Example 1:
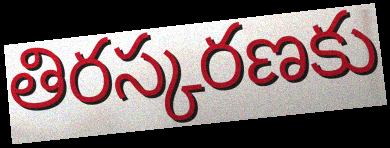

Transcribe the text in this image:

తిరస్కరణకు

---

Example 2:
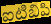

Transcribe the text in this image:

ఐటిబిపి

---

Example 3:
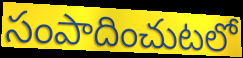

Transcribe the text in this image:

సంపాదించుటలో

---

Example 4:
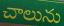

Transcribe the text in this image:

చాలును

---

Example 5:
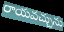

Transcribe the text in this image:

రాయవచ్చును